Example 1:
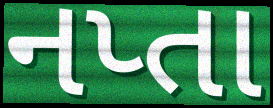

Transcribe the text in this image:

નપ્તા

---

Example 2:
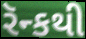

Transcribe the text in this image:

રૅન્કથી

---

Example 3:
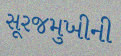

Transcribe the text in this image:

સૂરજમુખીની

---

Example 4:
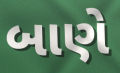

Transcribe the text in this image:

બાણે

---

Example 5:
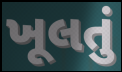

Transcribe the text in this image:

ખૂલતું